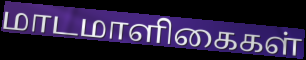
மாடமாளிகைகள்